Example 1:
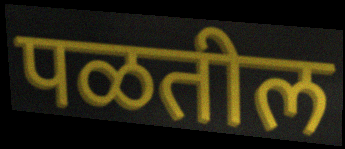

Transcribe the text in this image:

पळतील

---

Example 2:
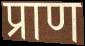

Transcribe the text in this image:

प्राण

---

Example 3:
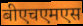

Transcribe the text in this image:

बीएचएमएस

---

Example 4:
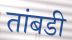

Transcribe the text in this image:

तांबडी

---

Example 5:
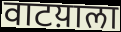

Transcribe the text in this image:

वाटय़ाला